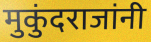
मुकुंदराजांनी